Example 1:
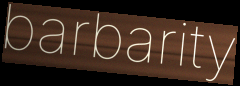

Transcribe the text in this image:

barbarity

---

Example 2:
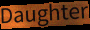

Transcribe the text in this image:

Daughter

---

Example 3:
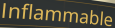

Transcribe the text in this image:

Inflammable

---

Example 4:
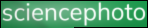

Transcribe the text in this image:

sciencephoto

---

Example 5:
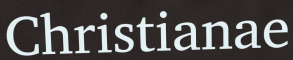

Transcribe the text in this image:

Christianae